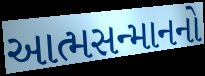
આત્મસન્માનનો